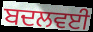
ਬਦਲਵਈ